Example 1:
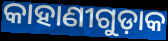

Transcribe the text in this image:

କାହାଣୀଗୁଡ଼ାକ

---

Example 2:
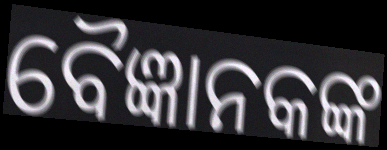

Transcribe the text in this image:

ବୈଜ୍ଞାନକଙ୍କ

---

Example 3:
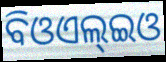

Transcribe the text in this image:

ବିଓଏଲ୍ଇଓ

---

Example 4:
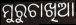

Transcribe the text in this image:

ମୁରୁଚାଖିଆ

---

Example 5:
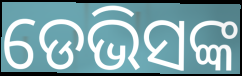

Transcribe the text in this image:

ଡେଭିସଙ୍କ